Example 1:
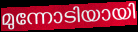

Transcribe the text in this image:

മുന്നോടിയായി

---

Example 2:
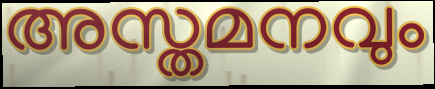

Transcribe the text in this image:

അസ്തമനവും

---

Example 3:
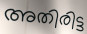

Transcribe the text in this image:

അതിരിട്ട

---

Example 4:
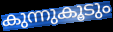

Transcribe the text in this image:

കുന്നുകൂടും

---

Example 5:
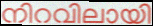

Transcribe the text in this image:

നിറവിലായി